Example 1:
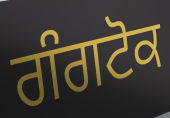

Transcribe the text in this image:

ਗੰਗਟੋਕ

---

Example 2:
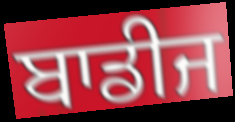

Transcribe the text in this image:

ਬਾਡੀਜ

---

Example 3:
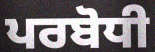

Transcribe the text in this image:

ਪਰਬੋਧੀ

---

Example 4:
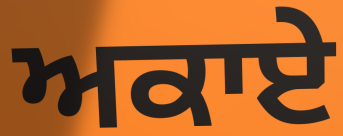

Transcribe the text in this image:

ਅਕਾਏ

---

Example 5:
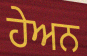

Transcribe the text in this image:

ਹੇਅਨ